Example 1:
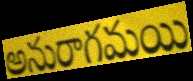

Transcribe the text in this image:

అనురాగమయి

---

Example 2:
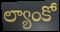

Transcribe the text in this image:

ల్యాంకో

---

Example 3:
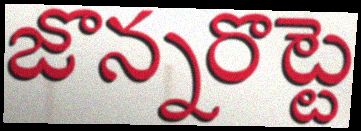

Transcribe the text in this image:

జొన్నరొట్టె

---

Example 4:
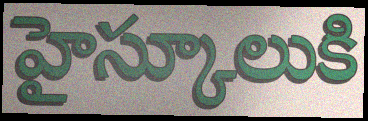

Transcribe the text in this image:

హైస్కూలుకి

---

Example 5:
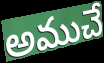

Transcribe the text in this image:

అముచే